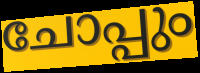
ചോപ്പും